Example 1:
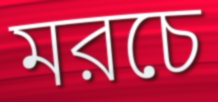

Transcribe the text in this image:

মরচে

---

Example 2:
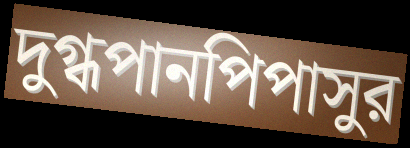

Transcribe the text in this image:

দুগ্ধপানপিপাসুর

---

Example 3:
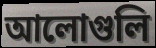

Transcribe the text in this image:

আলোগুলি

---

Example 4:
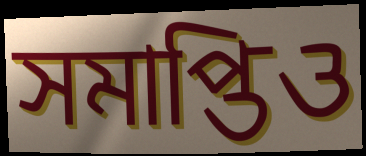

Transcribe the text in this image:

সমাপ্তিও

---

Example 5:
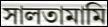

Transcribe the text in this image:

সালতামামি